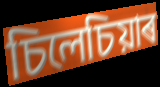
চিলেচিয়াৰ